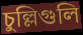
চুল্লিগুলি